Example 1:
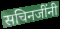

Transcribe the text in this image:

सचिनजींनी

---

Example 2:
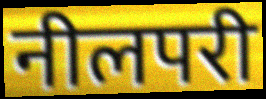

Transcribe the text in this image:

नीलपरी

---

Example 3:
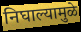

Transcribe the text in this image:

निघाल्यामुळे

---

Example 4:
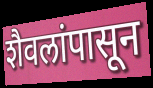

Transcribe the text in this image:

शैवलांपासून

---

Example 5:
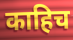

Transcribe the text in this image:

काहिच